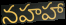
నహహా